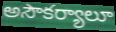
అసౌకర్యాలూ